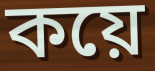
কয়ে